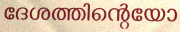
ദേശത്തിന്റെയോ